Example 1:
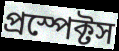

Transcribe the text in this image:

প্রস্পেক্টস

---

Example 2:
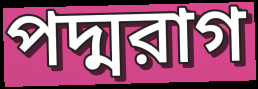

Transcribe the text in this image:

পদ্মরাগ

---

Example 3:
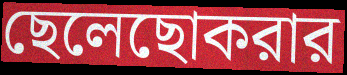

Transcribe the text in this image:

ছেলেছোকরার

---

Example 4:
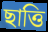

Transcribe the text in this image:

ছাত্তি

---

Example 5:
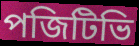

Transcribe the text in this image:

পজিটিভি